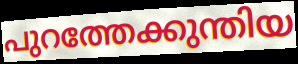
പുറത്തേക്കുന്തിയ